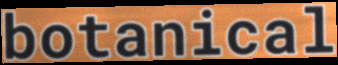
botanical